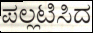
ಪಲ್ಲಟಿಸಿದ